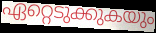
ഏറ്റെടുക്കുകയും